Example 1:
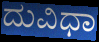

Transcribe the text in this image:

ದುವಿಧಾ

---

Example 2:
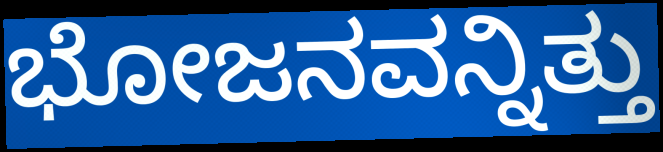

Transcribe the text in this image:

ಭೋಜನವನ್ನಿತ್ತು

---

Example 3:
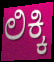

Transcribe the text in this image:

ಲಿಕ್ಕಿ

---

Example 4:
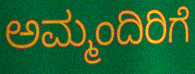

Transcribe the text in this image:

ಅಮ್ಮಂದಿರಿಗೆ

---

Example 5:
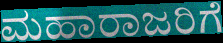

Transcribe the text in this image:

ಮಹಾರಾಜರಿಗೆ